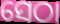
ସେଠା